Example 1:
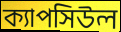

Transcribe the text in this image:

ক্যাপসিউল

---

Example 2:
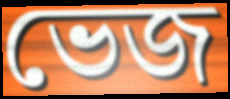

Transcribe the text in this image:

ভেজ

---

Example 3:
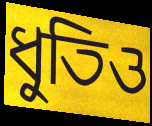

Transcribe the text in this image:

ধুতিও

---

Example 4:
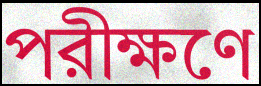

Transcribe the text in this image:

পরীক্ষণে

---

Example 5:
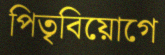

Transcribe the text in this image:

পিতৃবিয়োগে